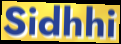
Sidhhi